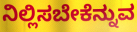
ನಿಲ್ಲಿಸಬೇಕೆನ್ನುವ